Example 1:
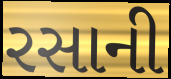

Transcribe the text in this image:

રસાની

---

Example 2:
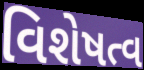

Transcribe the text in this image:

વિશેષત્વ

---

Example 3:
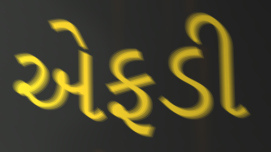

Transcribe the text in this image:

એફડી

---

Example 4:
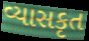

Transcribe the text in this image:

વ્યાસકૃત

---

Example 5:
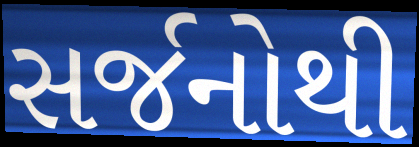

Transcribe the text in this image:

સર્જનોથી